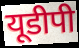
यूडीपी